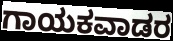
ಗಾಯಕವಾಡರ